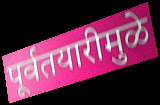
पूर्वतयारीमुळे